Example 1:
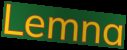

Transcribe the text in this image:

Lemna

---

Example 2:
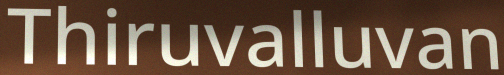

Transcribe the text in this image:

Thiruvalluvan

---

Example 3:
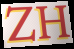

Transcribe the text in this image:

ZH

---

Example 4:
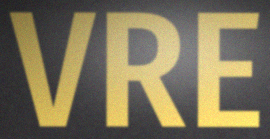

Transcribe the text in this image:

VRE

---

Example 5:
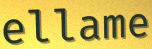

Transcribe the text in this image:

ellame